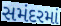
સમંદરમાં